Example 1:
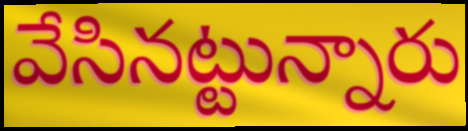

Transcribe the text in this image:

వేసినట్టున్నారు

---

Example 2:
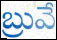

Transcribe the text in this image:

బ్రువే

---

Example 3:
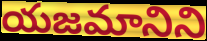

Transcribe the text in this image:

యజమానిని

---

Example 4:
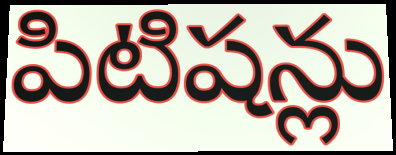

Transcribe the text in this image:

పిటిషన్లు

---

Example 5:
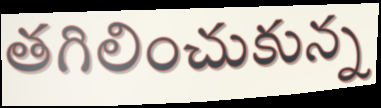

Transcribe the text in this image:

తగిలించుకున్న